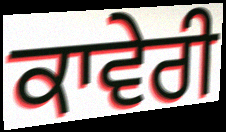
ਕਾਵੇਰੀ